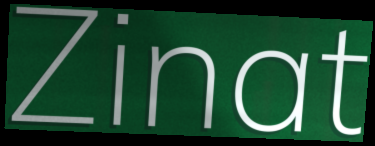
Zinat